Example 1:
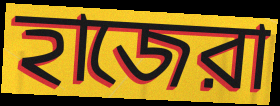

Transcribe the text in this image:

হাজেরা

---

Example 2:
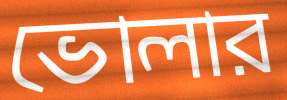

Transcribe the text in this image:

ভোলার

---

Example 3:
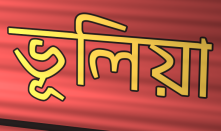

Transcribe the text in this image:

ভূলিয়া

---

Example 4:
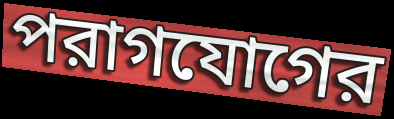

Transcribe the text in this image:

পরাগযোগের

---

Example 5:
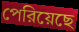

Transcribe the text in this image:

পেরিয়েছে